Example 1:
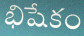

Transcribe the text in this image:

భిషేకం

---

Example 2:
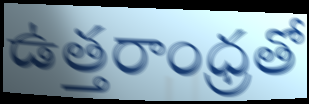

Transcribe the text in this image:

ఉత్తరాంధ్రతో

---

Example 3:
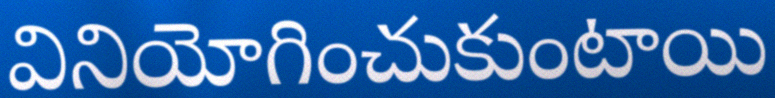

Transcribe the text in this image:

వినియోగించుకుంటాయి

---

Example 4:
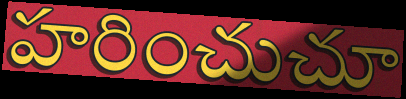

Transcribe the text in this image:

హరించుచూ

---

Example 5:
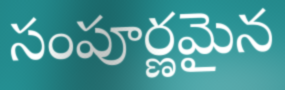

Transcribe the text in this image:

సంపూర్ణమైన